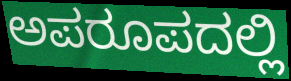
ಅಪರೂಪದಲ್ಲಿ